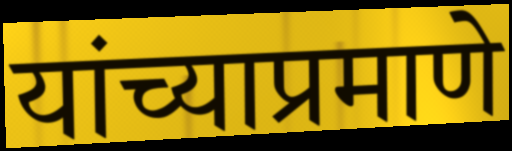
यांच्याप्रमाणे